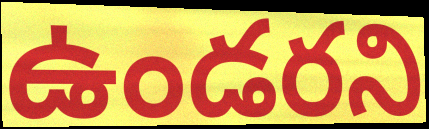
ఉండరని